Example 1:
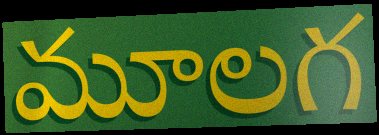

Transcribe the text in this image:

మూలగ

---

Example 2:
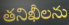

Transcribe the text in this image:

తనిఖీలను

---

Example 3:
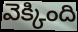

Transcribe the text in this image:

వెక్కింది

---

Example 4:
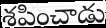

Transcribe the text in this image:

శపించాడు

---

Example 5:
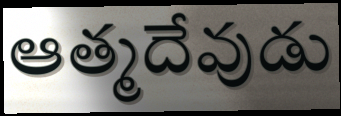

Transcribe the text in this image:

ఆత్మదేవుడు